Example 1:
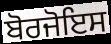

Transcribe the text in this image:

ਬੋਰਜੋਇਸ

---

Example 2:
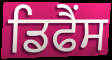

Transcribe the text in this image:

ਡਿਫੈਂਸ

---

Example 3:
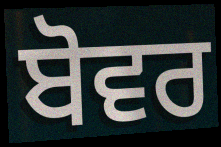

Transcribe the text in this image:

ਬੋਵਰ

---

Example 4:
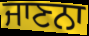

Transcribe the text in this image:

ਜਾਣਨਾ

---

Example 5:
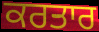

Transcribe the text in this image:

ਕਰਤਾਰ